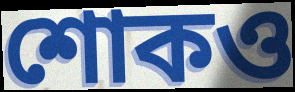
শোকও